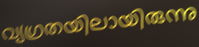
വ്യഗ്രതയിലായിരുന്നു